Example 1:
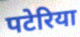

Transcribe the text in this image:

पटेरिया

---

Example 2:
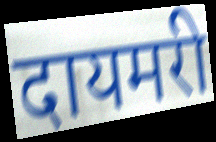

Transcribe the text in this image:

दायमरी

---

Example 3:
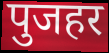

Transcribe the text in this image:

पुजहर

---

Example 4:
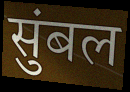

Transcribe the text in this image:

सुंबल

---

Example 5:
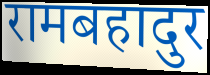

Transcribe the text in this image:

रामबहादुर